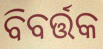
ବିବର୍ତ୍ତକ